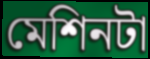
মেশিনটা